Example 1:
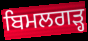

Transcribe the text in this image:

ਬਿਮਲਗੜ੍ਹ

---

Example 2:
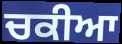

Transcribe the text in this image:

ਚਕੀਆ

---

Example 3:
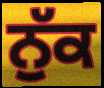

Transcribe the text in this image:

ਨੁੱਕ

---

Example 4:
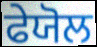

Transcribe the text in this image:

ਫੇਯੋਲ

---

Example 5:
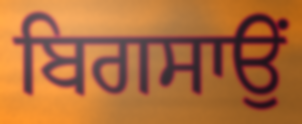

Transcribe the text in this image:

ਬਿਗਸਾਉਂ